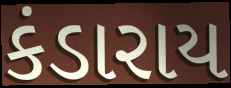
કંડારાય